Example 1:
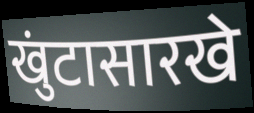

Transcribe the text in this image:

खुंटासारखे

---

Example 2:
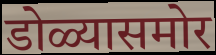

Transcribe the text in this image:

डोळ्यासमोर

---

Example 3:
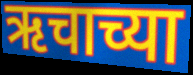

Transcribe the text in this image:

ऋचाच्या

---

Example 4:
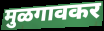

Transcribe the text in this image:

मुळगावकर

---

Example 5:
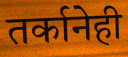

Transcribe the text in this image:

तर्कानेही